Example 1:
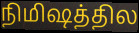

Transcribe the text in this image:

நிமிஷத்தில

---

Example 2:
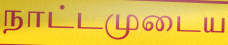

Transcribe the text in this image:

நாட்டமுடைய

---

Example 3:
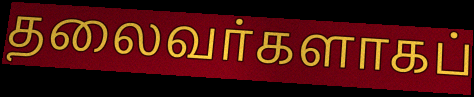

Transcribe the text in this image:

தலைவர்களாகப்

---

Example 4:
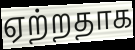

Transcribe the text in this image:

ஏற்றதாக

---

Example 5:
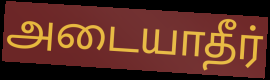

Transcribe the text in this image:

அடையாதீர்